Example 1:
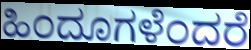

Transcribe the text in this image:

ಹಿಂದೂಗಳೆಂದರೆ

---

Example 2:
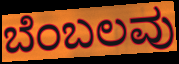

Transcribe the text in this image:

ಬೆಂಬಲವು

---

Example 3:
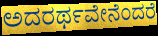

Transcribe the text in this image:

ಅದರರ್ಥವೇನೆಂದರೆ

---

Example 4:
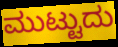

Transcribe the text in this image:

ಮುಟ್ಟುದು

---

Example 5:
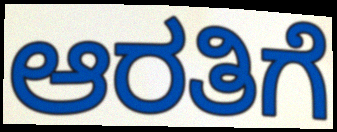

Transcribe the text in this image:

ಆರತಿಗೆ